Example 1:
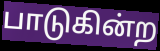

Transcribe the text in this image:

பாடுகின்ற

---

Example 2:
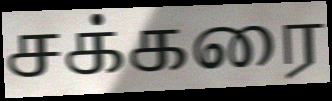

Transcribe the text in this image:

சக்கரை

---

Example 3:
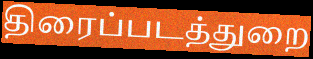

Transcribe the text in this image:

திரைப்படத்துறை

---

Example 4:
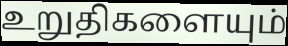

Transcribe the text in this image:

உறுதிகளையும்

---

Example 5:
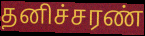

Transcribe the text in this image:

தனிச்சரண்